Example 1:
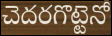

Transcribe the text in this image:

చెదరగొట్టెనో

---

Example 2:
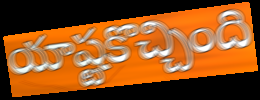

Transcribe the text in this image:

యాష్టకొచ్చింది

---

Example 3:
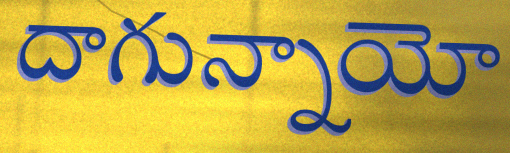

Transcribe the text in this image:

దాగున్నాయో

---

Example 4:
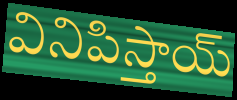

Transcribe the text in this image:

వినిపిస్తాయ్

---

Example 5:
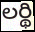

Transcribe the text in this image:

లర్థి